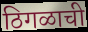
ठिगळाची